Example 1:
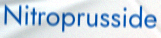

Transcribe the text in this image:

Nitroprusside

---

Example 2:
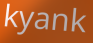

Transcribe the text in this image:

kyank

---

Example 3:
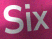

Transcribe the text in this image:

Six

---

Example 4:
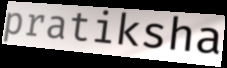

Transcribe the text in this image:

pratiksha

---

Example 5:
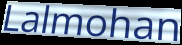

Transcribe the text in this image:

Lalmohan